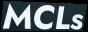
MCLs